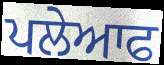
ਪਲੇਆਫ